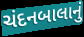
ચંદનબાલાનું